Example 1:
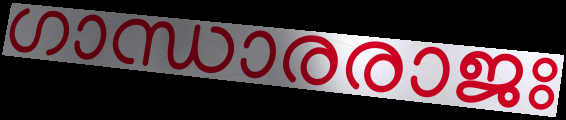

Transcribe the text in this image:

ഗാന്ധാരരാജഃ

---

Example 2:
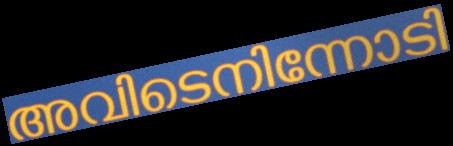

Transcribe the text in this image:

അവിടെനിന്നോടി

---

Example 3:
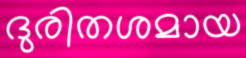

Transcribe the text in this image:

ദുരിതശമായ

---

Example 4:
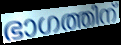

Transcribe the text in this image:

ഭാഗത്തിന്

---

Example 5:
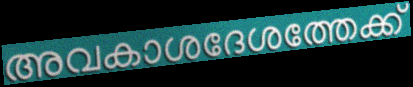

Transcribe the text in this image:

അവകാശദേശത്തേക്ക്